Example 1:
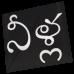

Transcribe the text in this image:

నీళ్ల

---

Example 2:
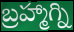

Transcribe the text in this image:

బ్రహ్మాగ్ని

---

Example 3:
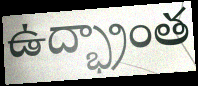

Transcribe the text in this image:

ఉద్భ్రాంత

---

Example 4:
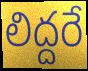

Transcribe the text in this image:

లిద్దరే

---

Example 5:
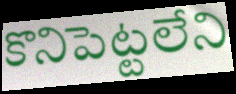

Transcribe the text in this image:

కొనిపెట్టలేని